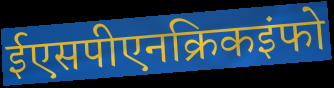
ईएसपीएनक्रिकइंफो